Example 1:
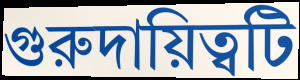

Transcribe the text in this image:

গুরুদায়িত্বটি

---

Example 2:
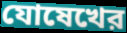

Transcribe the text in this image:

যোষেখের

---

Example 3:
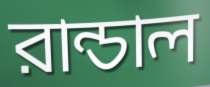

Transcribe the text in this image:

রান্ডাল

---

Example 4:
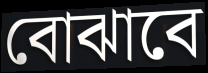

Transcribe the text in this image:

বোঝাবে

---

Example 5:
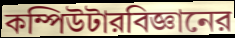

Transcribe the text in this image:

কম্পিউটারবিজ্ঞানের